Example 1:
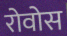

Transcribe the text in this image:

रोवोस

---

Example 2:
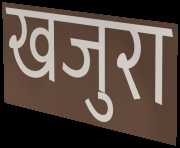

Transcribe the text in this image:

खजुरा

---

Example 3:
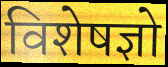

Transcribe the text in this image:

विशेषज्ञो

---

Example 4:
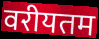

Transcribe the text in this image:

वरीयतम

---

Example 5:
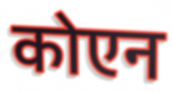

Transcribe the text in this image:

कोएन